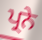
ਪ੍ਰਨੇ